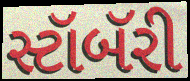
સ્ટૉબૅરી